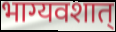
भाग्यवशात्